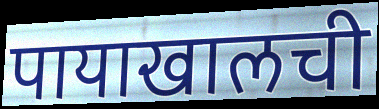
पायाखालची